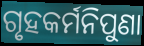
ଗୃହକର୍ମନିପୁଣା